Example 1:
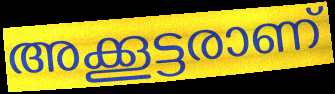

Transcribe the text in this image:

അക്കൂട്ടരാണ്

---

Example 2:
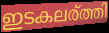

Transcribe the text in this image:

ഇടകലര്ത്തി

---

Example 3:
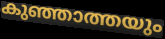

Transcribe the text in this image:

കുഞ്ഞാത്തയും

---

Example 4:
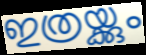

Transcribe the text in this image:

ഇത്രയ്ക്കും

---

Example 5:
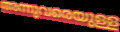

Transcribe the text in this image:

അന്നുവരെയുള്ള